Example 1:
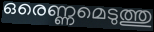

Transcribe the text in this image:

ഒരെണ്ണമെടുത്തു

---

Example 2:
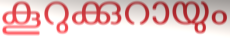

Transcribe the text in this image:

കൂറുക്കുറായും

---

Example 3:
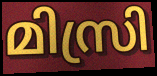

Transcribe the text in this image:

മിസ്രി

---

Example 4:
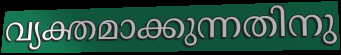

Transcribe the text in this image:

വ്യക്തമാക്കുന്നതിനു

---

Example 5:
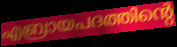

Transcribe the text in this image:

എബ്രായപദത്തിന്റെ